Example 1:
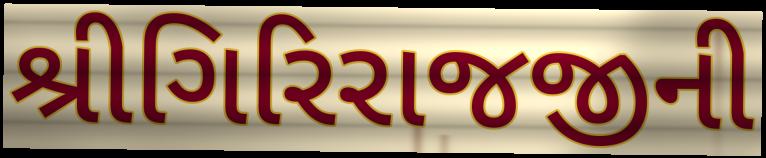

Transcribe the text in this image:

શ્રીગિરિરાજજીની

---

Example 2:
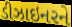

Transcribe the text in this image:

ડીઝાઇનરને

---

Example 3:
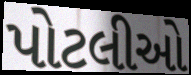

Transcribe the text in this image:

પોટલીઓ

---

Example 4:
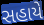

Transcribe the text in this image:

સહાયે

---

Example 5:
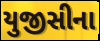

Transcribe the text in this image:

યુજીસીના